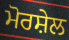
ਮੋਰਸ਼ੇਲ